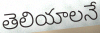
తెలియాలనే